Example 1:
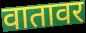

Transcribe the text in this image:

वातावर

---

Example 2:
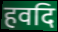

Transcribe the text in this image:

हवदि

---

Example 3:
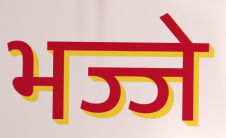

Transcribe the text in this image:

भज्जे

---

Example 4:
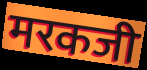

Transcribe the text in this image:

मरकजी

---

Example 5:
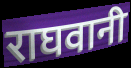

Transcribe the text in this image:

राघवानी